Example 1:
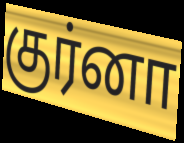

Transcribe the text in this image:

குர்னா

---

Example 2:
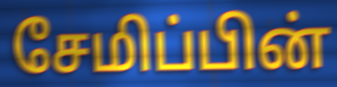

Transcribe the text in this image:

சேமிப்பின்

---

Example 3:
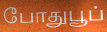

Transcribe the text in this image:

போதுபூப்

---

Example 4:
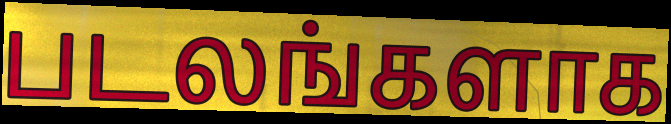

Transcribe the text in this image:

படலங்களாக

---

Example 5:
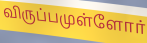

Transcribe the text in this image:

விருப்பமுள்ளோர்